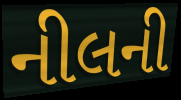
નીલની